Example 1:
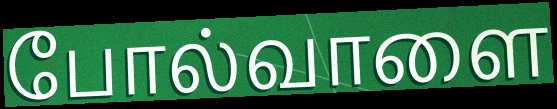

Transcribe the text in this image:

போல்வாளை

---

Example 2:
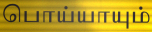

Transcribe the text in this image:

பொய்யாயும்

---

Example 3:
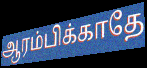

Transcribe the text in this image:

ஆரம்பிக்காதே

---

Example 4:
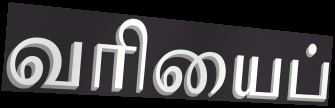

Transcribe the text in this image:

வரியைப்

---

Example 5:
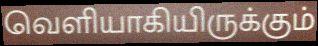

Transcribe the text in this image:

வெளியாகியிருக்கும்